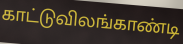
காட்டுவிலங்காண்டி